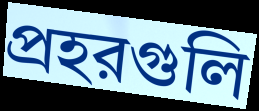
প্রহরগুলি